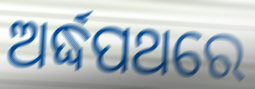
ଅର୍ଦ୍ଧପଥରେ